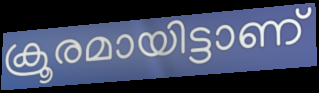
ക്രൂരമായിട്ടാണ്